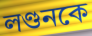
লণ্ডনকে